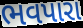
ભવપારા